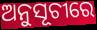
ଅନୁସୂଚୀରେ